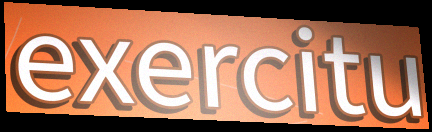
exercitu